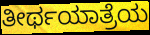
ತೀರ್ಥಯಾತ್ರೆಯ